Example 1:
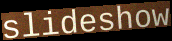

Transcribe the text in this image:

slideshow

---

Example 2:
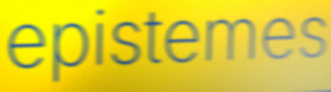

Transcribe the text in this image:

epistemes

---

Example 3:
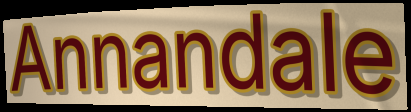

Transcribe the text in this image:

Annandale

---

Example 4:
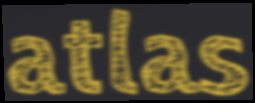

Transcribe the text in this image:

atlas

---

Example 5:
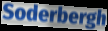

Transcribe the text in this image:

Soderbergh